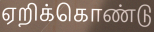
ஏறிக்கொண்டு